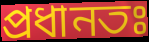
প্রধানতঃ